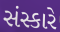
સંસ્કારે